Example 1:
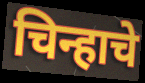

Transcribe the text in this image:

चिन्हाचे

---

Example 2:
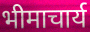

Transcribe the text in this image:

भीमाचार्य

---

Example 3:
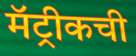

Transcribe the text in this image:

मॅट्रीकची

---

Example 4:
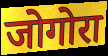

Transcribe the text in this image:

जोगोरा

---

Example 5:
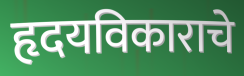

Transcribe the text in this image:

हृदयविकाराचे